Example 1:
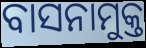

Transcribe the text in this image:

ବାସନାମୁକ୍ତ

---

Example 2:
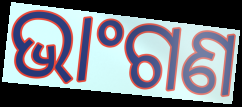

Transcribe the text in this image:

ଭାଂଗଣ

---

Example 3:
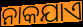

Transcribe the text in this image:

ନାକଯାଏ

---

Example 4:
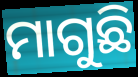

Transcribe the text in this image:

ମାଗୁଛି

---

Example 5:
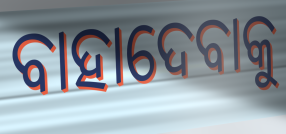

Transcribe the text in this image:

ବାହାଦେବାକୁ